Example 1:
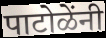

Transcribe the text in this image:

पाटोळेंनी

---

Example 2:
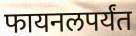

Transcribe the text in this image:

फायनलपर्यंत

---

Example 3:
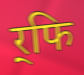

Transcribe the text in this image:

र्फि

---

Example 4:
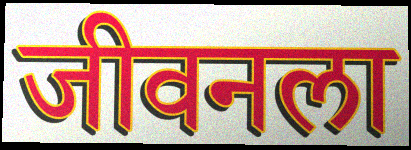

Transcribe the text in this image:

जीवनला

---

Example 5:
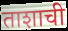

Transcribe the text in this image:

ताशाची